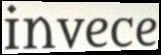
invece